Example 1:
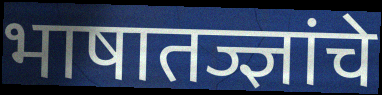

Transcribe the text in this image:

भाषातज्ज्ञांचे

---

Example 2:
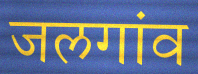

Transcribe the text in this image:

जलगांव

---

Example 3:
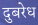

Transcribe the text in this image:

दुबरेध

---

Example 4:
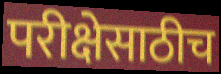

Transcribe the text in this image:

परीक्षेसाठीच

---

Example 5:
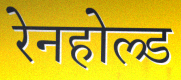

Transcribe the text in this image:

रेनहोल्ड